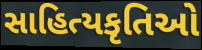
સાહિત્યકૃતિઓ